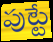
పుట్టే